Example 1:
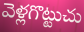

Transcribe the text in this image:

వెళ్లగొట్టుచు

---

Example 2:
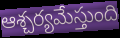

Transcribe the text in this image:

ఆశ్చర్యమేస్తుంది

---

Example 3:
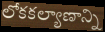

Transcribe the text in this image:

లోకకల్యాణాన్ని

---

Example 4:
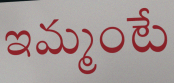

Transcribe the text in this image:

ఇమ్మంటే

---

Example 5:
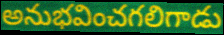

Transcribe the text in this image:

అనుభవించగలిగాడు